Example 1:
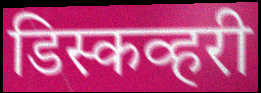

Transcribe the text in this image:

डिस्कव्हरी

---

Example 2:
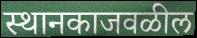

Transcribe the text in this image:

स्थानकाजवळील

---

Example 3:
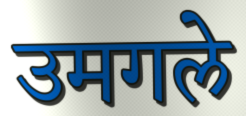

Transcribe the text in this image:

उमगले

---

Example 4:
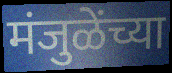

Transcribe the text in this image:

मंजुळेंच्या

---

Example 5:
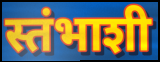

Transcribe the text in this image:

स्तंभाशी